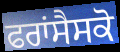
ਫਰਾਂਸੈਸਕੋ